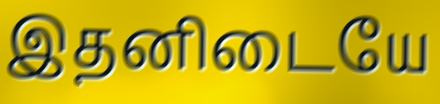
இதனிடையே